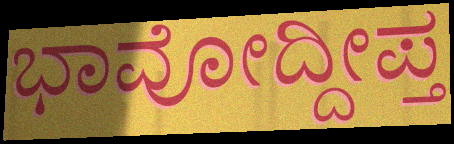
ಭಾವೋದ್ದೀಪ್ತ